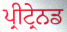
ਪ੍ਰੀਟ੍ਰੇਨਡ